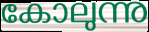
കോലുന്നു